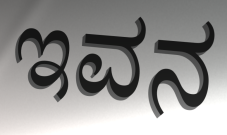
ಇವನ